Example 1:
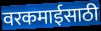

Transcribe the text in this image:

वरकमाईसाठी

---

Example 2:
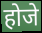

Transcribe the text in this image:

होजे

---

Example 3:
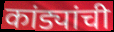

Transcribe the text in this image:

कांड्यांची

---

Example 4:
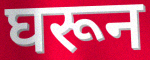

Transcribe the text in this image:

घरून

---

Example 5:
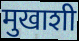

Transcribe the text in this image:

मुखाशी